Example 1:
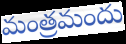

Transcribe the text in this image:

మంత్రమందు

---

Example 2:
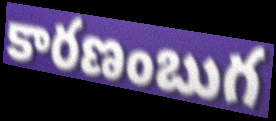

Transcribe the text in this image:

కారణంబుగ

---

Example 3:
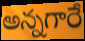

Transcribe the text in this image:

అన్నగారే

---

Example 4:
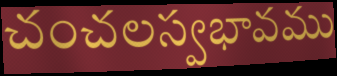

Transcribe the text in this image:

చంచలస్వభావము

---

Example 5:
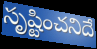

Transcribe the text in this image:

సృష్టించనిదే